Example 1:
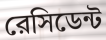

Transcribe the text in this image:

রেসিডেন্ট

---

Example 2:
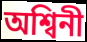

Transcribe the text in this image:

অশ্বিনী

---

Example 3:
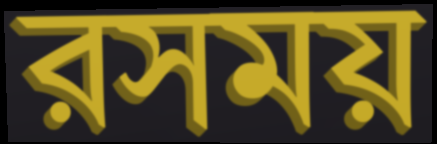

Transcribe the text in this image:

রসময়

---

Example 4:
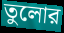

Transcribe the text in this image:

তুলোর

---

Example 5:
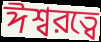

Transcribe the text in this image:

ঈশ্বরত্বে